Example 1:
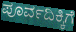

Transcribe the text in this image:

ಪೂರ್ವದಿಕ್ಕಿಗೆ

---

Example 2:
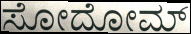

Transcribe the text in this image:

ಸೋದೋಮ್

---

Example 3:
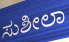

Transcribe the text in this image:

ಸುಶೀಲಾ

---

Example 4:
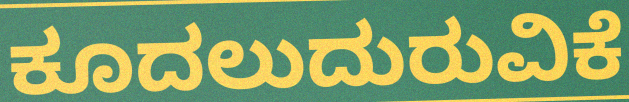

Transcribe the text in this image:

ಕೂದಲುದುರುವಿಕೆ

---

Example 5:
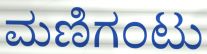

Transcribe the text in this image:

ಮಣಿಗಂಟು